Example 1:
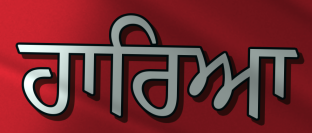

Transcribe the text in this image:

ਹਾਰਿਆ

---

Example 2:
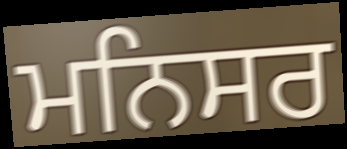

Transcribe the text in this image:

ਮਨਿਸਰ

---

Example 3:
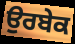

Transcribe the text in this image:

ਉਰਬੇਕ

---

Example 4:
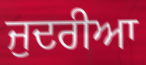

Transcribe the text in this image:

ਜੁਦਰੀਆ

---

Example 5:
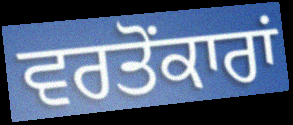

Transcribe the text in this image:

ਵਰਤੋਂਕਾਰਾਂ